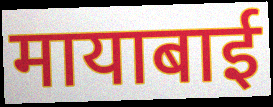
मायाबाई